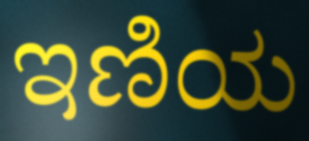
ಇಣಿಯ